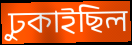
ঢুকাইছিল